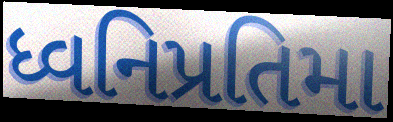
ધ્વનિપ્રતિમા